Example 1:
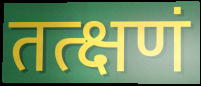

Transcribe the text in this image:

तत्क्षणं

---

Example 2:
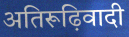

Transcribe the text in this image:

अतिरूढ़िवादी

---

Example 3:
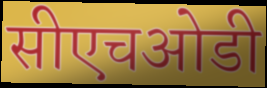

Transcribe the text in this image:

सीएचओडी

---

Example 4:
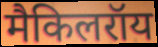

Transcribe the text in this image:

मैकिलरॉय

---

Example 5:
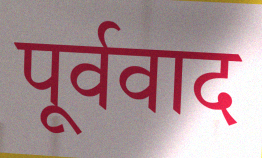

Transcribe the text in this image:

पूर्ववाद